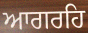
ਆਗਰਹਿ